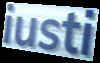
iusti